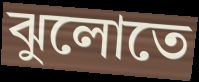
ঝুলোতে